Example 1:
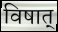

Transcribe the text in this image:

विषात्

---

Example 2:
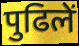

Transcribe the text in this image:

पुढिलें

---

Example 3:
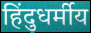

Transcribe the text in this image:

हिंदुधर्मीय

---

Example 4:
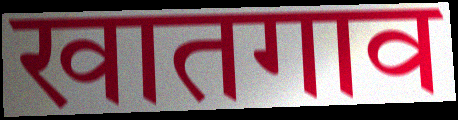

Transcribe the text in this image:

खातगाव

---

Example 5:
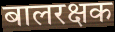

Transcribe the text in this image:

बालरक्षक